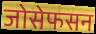
जोसेफसन